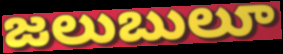
జలుబులూ